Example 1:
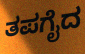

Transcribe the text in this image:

ತಪಗೈದ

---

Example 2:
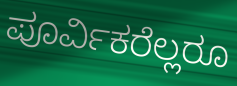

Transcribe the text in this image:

ಪೂರ್ವಿಕರೆಲ್ಲರೂ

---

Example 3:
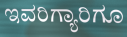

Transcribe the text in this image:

ಇವರಿಗ್ಯಾರಿಗೂ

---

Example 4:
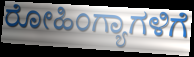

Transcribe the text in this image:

ರೋಹಿಂಗ್ಯಾಗಳಿಗೆ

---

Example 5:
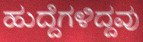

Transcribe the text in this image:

ಹುದ್ದೆಗಳಿದ್ದವು